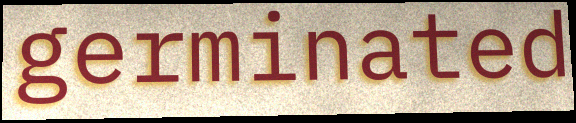
germinated